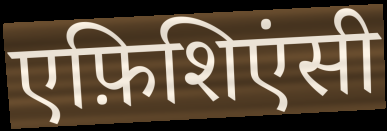
एफ़िशिएंसी